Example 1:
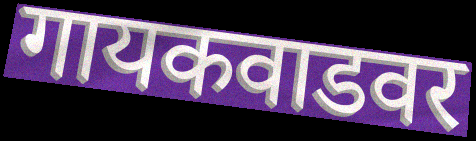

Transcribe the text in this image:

गायकवाडवर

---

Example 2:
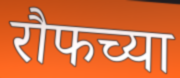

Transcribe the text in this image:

रौफच्या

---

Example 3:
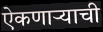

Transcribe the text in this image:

ऐकणार्‍याची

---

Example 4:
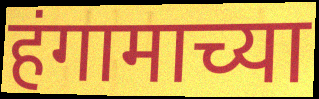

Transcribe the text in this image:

हंगामाच्या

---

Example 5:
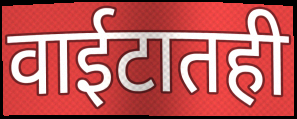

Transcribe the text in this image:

वाईटातही